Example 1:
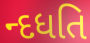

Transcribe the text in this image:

ન્દધતિ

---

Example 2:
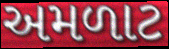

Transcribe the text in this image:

અમળાટ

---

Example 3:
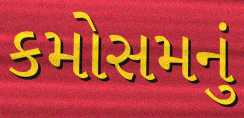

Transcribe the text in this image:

કમોસમનું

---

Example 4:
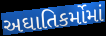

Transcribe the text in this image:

અઘાતિકર્મોમાં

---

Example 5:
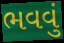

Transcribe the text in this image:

ભવવું